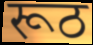
रूठ